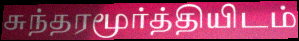
சுந்தரமூர்த்தியிடம்